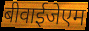
बीवाईजेएम